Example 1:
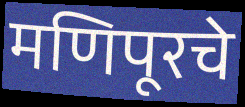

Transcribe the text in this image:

मणिपूरचे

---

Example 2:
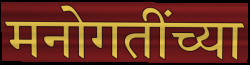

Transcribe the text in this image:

मनोगतींच्या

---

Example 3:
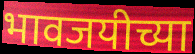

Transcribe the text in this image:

भावजयीच्या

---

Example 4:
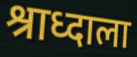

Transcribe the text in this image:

श्राध्दाला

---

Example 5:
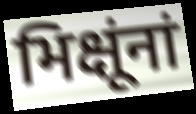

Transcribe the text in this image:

भिक्षूंनां